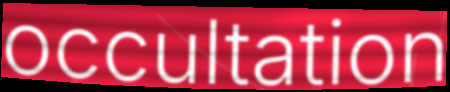
occultation